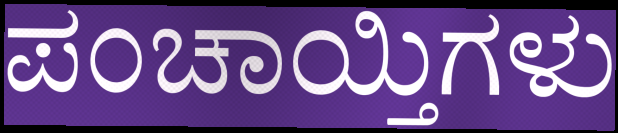
ಪಂಚಾಯ್ತಿಗಳು